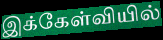
இக்கேள்வியில்